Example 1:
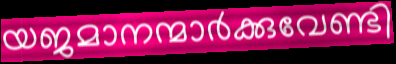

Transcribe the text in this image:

യജമാനന്മാർക്കുവേണ്ടി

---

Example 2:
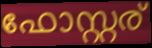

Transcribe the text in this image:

ഫോസ്റ്റര്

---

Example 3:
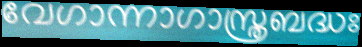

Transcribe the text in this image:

വേഗാന്നാഗാസ്ത്രബദ്ധഃ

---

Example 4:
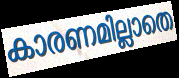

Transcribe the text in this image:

കാരണമില്ലാതെ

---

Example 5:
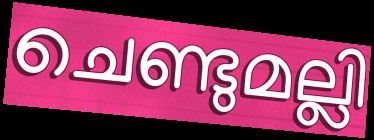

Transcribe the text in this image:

ചെണ്ടുമല്ലി